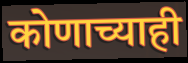
कोणाच्याही